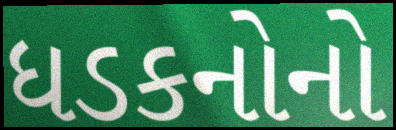
ધડકનોનો